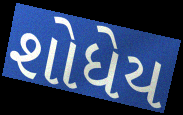
શોધેય